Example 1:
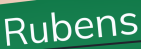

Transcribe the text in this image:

Rubens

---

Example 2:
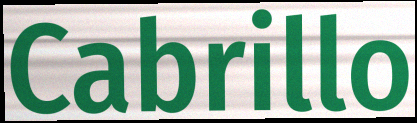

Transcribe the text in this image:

Cabrillo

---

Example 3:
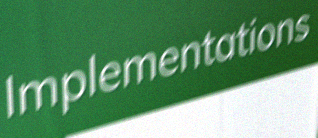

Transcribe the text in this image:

Implementations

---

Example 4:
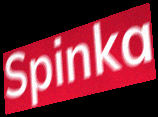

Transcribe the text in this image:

Spinka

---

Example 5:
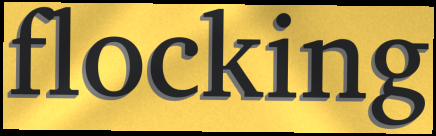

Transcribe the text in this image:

flocking